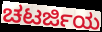
ಚಟರ್ಜಿಯ